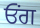
ਓਂਗ